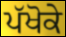
ਪੱਖੋਕੇ